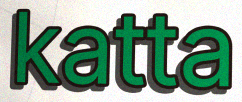
katta